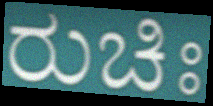
ರುಚಿಃ